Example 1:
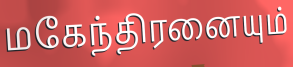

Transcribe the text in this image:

மகேந்திரனையும்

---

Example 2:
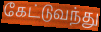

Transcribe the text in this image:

கேட்டுவந்து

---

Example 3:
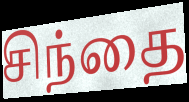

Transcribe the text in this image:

சிந்தை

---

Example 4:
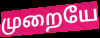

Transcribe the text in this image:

முறையே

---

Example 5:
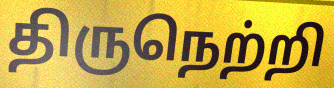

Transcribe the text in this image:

திருநெற்றி